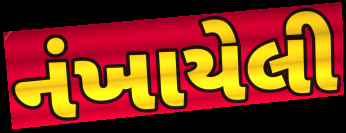
નંખાયેલી